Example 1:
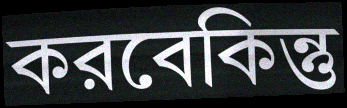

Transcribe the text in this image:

করবেকিন্তু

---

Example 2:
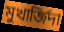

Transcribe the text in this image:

মুখার্জিদা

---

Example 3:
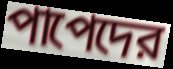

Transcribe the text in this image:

পাপেদের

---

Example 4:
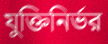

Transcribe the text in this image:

যুক্তিনির্ভর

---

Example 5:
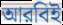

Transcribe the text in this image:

আরবিই